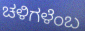
ಚಳಿಗಳೆಂಬ